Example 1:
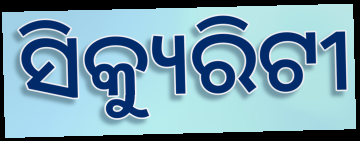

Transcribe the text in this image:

ସିକ୍ୟୁରିଟୀ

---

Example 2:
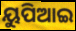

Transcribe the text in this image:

ୟୁପିଆଇ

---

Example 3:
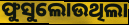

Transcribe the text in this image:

ଫୁସୁଲୋଉଥିଲା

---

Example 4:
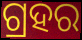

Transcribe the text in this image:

ଗ୍ରହର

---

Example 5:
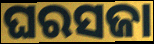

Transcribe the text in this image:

ଘରସଜା